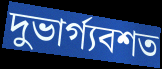
দুভার্গ্যবশত